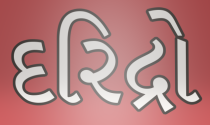
દરિદ્રો